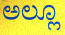
ಅಲ್ಲೂ